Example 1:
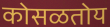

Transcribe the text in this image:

कोसळतोय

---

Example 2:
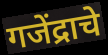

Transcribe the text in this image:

गजेंद्राचे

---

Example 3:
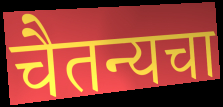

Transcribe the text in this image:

चैतन्यचा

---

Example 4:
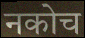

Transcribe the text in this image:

नकोच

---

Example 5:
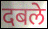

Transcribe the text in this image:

दबले